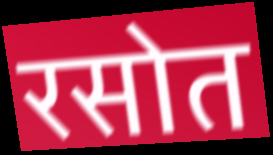
रसोत